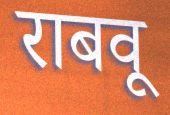
राबवू